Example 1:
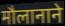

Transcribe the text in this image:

मौलानाने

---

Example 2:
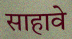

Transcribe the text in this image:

साहावे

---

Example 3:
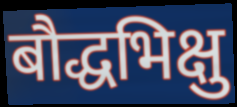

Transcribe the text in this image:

बौद्धभिक्षु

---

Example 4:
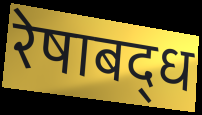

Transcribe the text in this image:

रेषाबद्ध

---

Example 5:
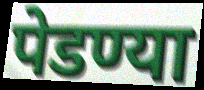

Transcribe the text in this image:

पेडण्या